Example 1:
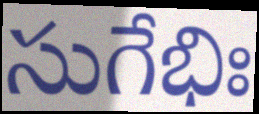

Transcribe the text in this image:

సుగేభిః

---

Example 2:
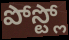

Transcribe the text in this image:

పోస్ట్లో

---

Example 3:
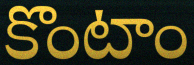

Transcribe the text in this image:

కొంటాం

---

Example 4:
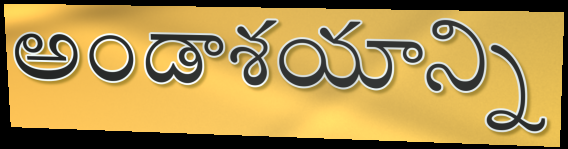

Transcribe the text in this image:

అండాశయాన్ని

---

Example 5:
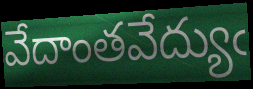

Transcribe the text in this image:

వేదాంతవేద్యుఁ